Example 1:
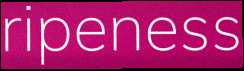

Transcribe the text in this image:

ripeness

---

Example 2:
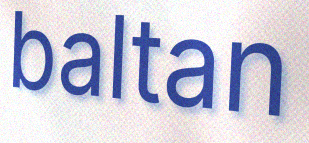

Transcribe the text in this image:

baltan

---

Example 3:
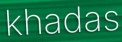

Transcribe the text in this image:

khadas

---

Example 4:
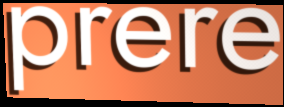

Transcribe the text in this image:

prere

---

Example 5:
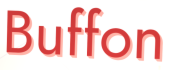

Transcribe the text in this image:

Buffon